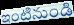
ఇంటినుండి